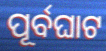
ପୂର୍ବଘାଟ